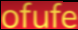
ofufe